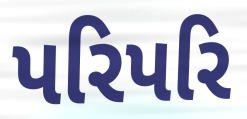
પરિપરિ